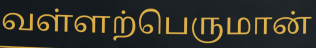
வள்ளற்பெருமான்